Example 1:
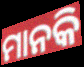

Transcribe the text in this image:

ମାନକି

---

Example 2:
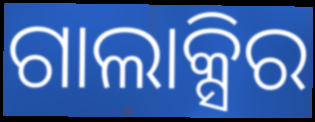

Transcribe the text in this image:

ଗାଲାକ୍ସିର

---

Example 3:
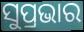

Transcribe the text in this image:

ସୁପ୍ରଭାର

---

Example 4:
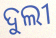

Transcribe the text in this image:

ଦୁଲୀ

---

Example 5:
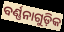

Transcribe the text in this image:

ବର୍ଣ୍ଣନାଗୁଡ଼ିକ